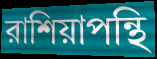
রাশিয়াপন্থি